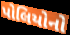
પોલિયોનો